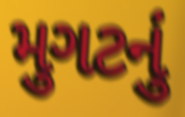
મુગટનું